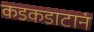
कडकडाटानं